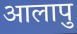
आलापु